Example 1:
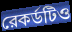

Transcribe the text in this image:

রেকর্ডটিও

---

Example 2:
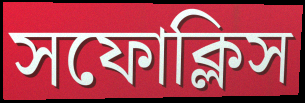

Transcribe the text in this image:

সফোক্লিস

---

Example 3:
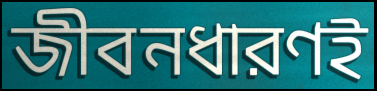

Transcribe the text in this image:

জীবনধারণই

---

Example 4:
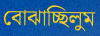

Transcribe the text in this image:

বোঝাচ্ছিলুম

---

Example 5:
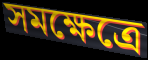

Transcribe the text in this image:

সমক্ষেত্রে